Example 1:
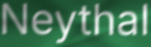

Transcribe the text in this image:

Neythal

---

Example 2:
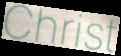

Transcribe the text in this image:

Christ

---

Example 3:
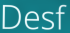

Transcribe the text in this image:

Desf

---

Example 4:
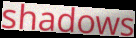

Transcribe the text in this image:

shadows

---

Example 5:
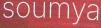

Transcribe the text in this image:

soumya